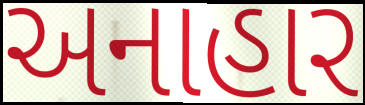
અનાહાર